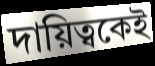
দায়িত্বকেই